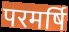
परमर्षि